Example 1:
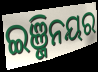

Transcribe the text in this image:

ଇଞ୍ଜିନୟର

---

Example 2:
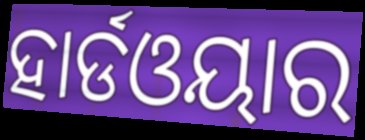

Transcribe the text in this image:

ହାର୍ଡଓୟାର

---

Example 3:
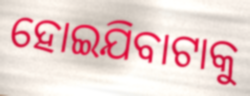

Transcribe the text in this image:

ହୋଇଯିବାଟାକୁ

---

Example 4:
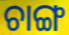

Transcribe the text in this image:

ଚାଙ୍ଗ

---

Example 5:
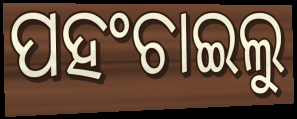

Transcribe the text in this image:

ପହଂଚାଇଲୁ